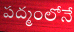
పద్మంలోనే